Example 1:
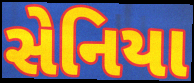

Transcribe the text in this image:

સેનિયા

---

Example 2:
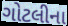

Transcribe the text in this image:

ગોટલીના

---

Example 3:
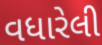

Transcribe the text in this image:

વધારેલી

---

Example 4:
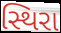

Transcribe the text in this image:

સ્થિરા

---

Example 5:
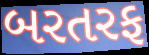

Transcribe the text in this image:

બરતરફ